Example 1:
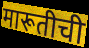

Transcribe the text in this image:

मारूतीची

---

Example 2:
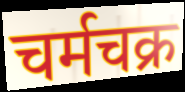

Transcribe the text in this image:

चर्मचक्र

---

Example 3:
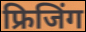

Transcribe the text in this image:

फ्रिजिंग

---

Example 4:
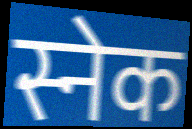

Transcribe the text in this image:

स्‍नेक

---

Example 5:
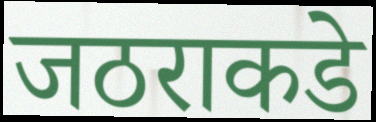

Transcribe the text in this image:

जठराकडे